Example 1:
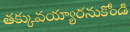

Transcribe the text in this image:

తక్కువయ్యారనుకోండి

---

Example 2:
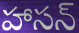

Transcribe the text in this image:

హాసన్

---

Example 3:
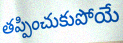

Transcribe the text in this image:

తప్పించుకుపోయే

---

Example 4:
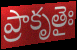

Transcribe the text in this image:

ప్రాకృతైః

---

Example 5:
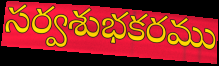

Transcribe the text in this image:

సర్వశుభకరము